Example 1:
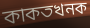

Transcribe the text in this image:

কাকতখনক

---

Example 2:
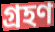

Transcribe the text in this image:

গ্ৰহণ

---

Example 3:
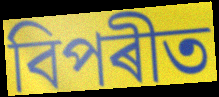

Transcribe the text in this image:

বিপৰীত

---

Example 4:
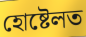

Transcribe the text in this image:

হোষ্টেলত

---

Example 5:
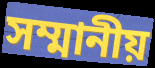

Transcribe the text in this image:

সম্মানীয়